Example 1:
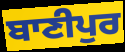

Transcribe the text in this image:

ਬਾਣੀਪੁਰ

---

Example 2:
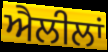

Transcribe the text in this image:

ਐਲੀਲਾਂ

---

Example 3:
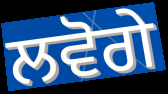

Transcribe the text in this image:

ਲਵੋਗੇ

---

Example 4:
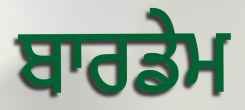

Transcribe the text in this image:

ਬਾਰਡੇਮ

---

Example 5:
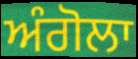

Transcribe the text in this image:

ਅੰਗੋਲਾ